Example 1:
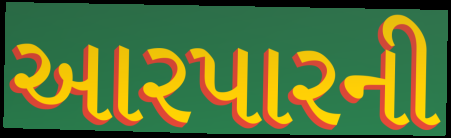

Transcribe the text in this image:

આરપારની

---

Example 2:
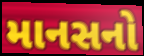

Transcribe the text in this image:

માનસનો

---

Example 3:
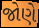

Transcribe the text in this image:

જોણે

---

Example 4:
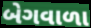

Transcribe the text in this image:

બેગવાળા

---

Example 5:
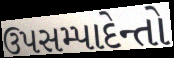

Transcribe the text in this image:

ઉપસમ્પાદેન્તો